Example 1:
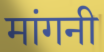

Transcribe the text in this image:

मांगनी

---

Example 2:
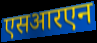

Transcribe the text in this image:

एसआरएन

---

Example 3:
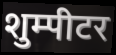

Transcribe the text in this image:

शुम्पीटर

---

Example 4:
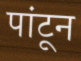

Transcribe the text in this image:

पांटून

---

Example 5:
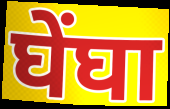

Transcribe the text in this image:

घेंघा